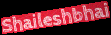
Shaileshbhai